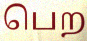
பெற